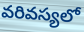
వరివస్యలో